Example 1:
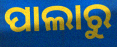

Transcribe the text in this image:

ପାଲାରୁ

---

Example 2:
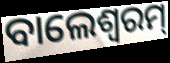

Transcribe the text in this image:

ବାଲେଶ୍ବରମ୍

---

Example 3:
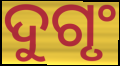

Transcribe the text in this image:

ଦୁଗୃଂ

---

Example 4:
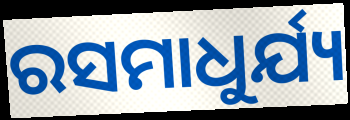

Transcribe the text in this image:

ରସମାଧୁର୍ଯ୍ୟ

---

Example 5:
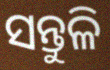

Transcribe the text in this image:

ସନ୍ତୁଳି